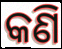
କଣି